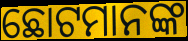
ଛୋଟମାନଙ୍କ